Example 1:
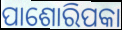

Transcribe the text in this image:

ପାଶୋରିପକା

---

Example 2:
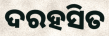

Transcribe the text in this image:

ଦରହସିତ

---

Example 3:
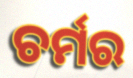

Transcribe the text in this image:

ଚର୍ମର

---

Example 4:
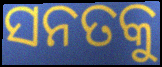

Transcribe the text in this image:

ସନତକୁ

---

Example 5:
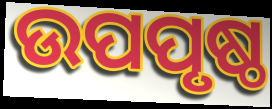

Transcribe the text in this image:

ଉପପୃଷ୍ଠ